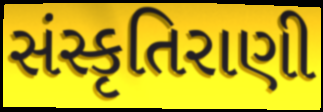
સંસ્કૃતિરાણી